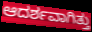
ಆದರ್ಶವಾಗಿತ್ತು